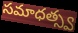
సమాధత్స్వ